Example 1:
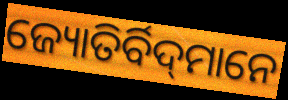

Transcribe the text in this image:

ଜ୍ୟୋତିର୍ବିଦ୍‌ମାନେ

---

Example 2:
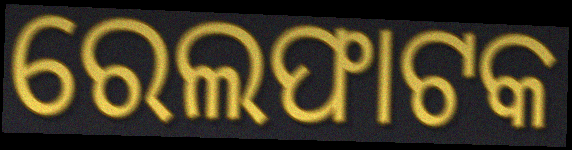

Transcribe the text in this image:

ରେଲଫାଟକ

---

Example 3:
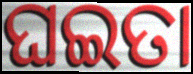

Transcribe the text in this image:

ଘଇତା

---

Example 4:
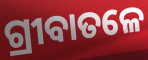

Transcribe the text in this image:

ଗ୍ରୀବାତଳେ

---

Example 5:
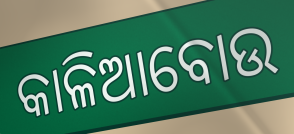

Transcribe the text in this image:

କାଳିଆବୋଉ